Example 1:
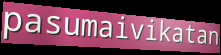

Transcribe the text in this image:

pasumaivikatan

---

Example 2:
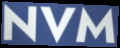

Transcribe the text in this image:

NVM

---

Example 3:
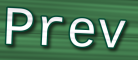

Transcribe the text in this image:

Prev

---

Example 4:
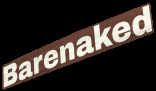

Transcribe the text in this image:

Barenaked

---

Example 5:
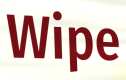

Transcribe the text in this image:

Wipe